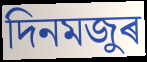
দিনমজুৰ